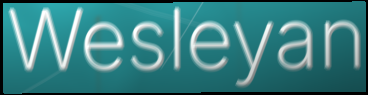
Wesleyan